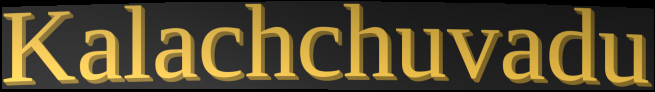
Kalachchuvadu